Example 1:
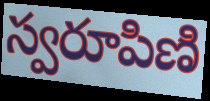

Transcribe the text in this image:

స్వరూపిణి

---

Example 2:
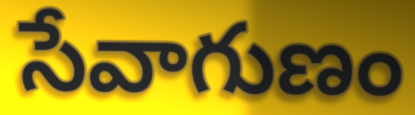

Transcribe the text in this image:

సేవాగుణం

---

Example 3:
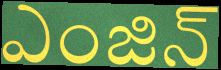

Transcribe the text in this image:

ఎంజిన్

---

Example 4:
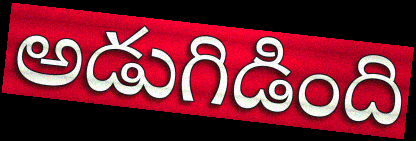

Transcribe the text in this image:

అడుగిడింది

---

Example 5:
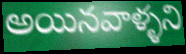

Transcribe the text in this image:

అయినవాళ్ళని